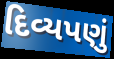
દિવ્યપણું